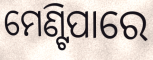
ମେଣ୍ଟିପାରେ